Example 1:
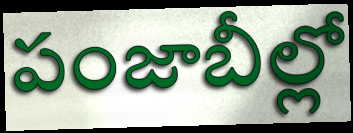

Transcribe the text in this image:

పంజాబీల్లో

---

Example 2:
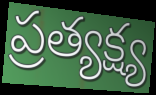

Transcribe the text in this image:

ప్రత్యక్ష్య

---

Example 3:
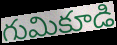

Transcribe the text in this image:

గుమికూడి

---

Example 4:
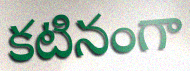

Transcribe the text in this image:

కటినంగా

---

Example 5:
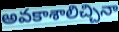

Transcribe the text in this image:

అవకాశాలిచ్చినా